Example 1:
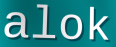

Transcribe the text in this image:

alok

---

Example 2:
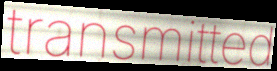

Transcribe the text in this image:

transmitted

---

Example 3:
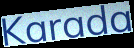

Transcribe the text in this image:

Karada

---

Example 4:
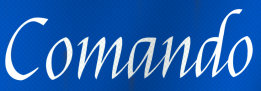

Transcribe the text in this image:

Comando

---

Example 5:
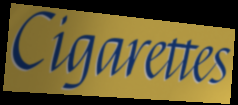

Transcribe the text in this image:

Cigarettes